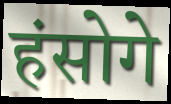
हंसोगे